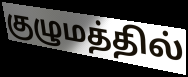
குழுமத்தில்